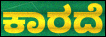
ಕಾರದೆ